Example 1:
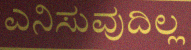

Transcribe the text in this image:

ಎನಿಸುವುದಿಲ್ಲ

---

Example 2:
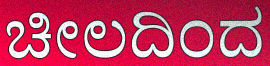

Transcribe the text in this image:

ಚೀಲದಿಂದ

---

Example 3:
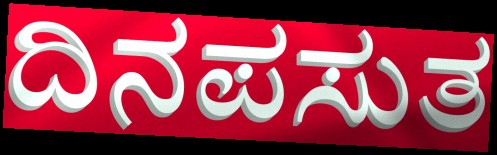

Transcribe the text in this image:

ದಿನಪಸುತ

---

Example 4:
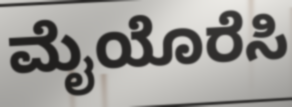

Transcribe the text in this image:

ಮೈಯೊರೆಸಿ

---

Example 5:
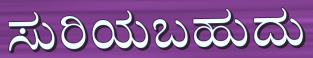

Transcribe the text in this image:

ಸುರಿಯಬಹುದು